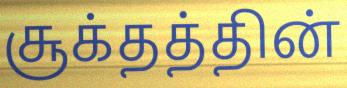
சூக்தத்தின்